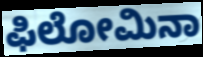
ಫಿಲೋಮಿನಾ